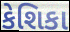
કેશિકા